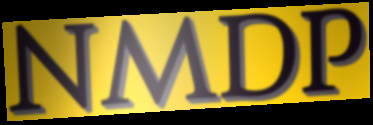
NMDP